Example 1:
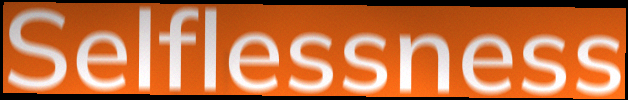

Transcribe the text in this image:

Selflessness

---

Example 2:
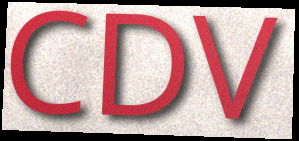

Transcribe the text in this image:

CDV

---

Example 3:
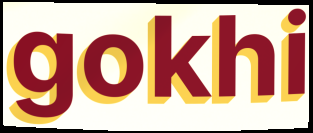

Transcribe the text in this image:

gokhi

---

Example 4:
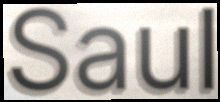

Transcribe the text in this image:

Saul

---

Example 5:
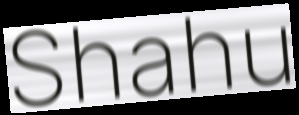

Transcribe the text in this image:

Shahu